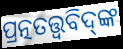
ପ୍ରତ୍ନତତ୍ତ୍ୱବିଦ୍‌ଙ୍କ